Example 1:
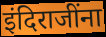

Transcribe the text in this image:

इंदिराजींना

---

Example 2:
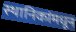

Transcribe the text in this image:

स्थानिकांमधून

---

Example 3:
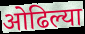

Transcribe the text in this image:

ओढिल्या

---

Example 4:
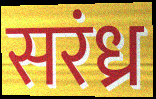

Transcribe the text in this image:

सरंध्र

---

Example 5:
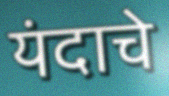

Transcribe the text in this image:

यंदाचे